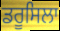
ਡਰੂਸਿਲਾ